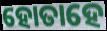
ହୋତାହେ